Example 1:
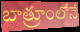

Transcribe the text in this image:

బాత్రూంలోనే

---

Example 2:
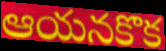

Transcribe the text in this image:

ఆయనకొక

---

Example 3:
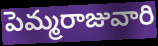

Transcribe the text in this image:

పెమ్మరాజువారి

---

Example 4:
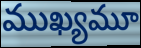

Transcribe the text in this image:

ముఖ్యమూ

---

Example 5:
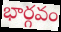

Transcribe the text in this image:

భార్గవం